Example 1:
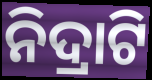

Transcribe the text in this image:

ନିଦ୍ରାଟି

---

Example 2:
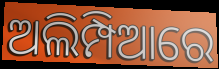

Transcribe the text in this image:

ଅଲିମ୍ପିଆରେ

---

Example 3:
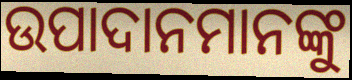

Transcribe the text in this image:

ଉପାଦାନମାନଙ୍କୁ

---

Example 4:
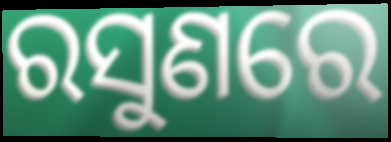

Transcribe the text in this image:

ରସୁଣରେ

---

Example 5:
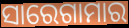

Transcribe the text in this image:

ସାରେଗାମାର